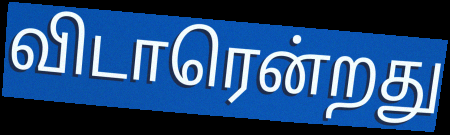
விடாரென்றது